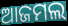
ଆଜମଲ